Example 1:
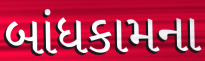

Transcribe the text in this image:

બાંધકામના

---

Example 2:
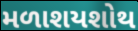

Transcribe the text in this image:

મળાશયશોથ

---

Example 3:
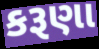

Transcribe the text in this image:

કરૂણા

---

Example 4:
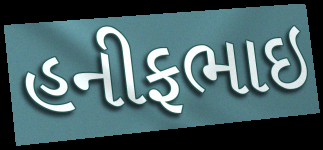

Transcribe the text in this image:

હનીફભાઇ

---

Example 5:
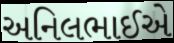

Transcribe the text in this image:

અનિલભાઈએ